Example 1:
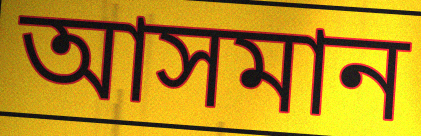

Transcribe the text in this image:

আসমান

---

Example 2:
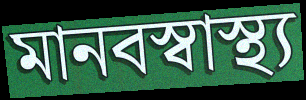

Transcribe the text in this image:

মানবস্বাস্থ্য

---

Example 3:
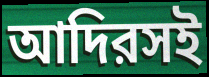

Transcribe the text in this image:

আদিরসই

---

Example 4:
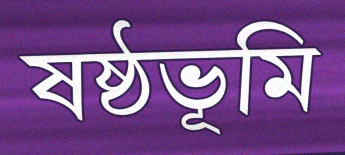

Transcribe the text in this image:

ষষ্ঠভূমি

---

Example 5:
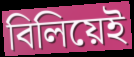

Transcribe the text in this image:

বিলিয়েই